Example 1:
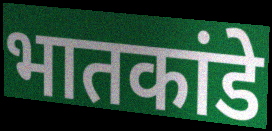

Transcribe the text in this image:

भातकांडे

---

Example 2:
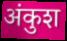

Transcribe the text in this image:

अंकुश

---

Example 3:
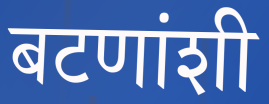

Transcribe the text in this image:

बटणांशी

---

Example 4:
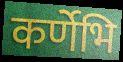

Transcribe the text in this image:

कर्णेभि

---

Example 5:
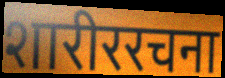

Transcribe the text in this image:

शारीररचना